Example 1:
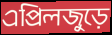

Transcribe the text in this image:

এপ্রিলজুড়ে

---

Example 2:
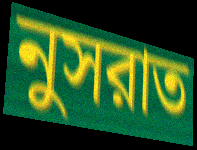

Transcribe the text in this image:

নুসরাত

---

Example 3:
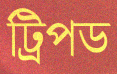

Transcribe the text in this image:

ট্রিপড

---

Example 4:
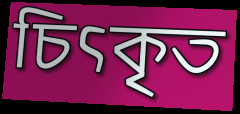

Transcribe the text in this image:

চিৎকৃত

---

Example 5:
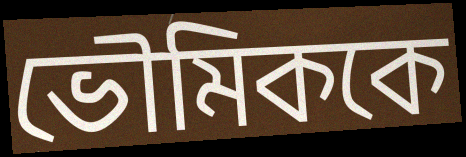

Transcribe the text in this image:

ভৌমিককে